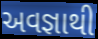
અવજ્ઞાથી